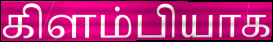
கிளம்பியாக